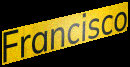
Francisco